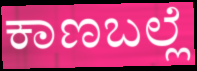
ಕಾಣಬಲ್ಲೆ